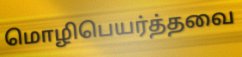
மொழிபெயர்த்தவை